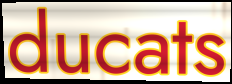
ducats